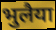
भुलैया